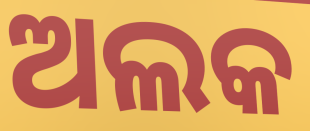
ଅଲକ